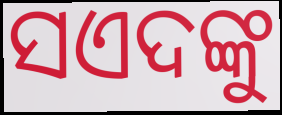
ସଏଦଙ୍କୁ